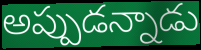
అప్పుడన్నాడు